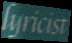
lyricist